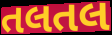
તલતલ